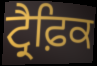
ਟ੍ਰੈਫ਼ਿਕ